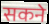
सकने